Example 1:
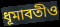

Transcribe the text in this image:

ধূমাবতীও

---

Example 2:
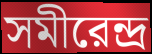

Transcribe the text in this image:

সমীরেন্দ্র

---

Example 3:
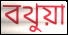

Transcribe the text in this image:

বথুয়া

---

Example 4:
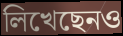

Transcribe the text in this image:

লিখেছেনও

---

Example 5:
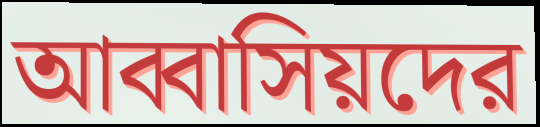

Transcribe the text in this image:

আব্বাসিয়দের